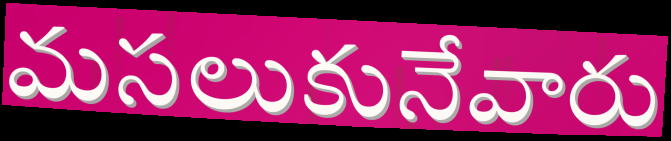
మసలుకునేవారు